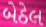
બેઠેલ